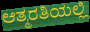
ಆತ್ಮರತಿಯಲ್ಲಿ